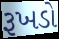
રૂખડો